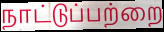
நாட்டுப்பற்றை